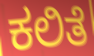
ಕಲಿತೆ